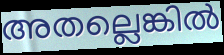
അതല്ലെങ്കിൽ